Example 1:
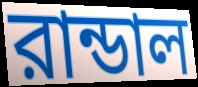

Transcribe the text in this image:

রান্ডাল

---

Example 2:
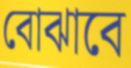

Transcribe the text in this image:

বোঝাবে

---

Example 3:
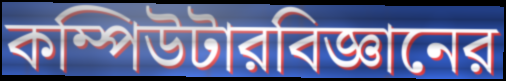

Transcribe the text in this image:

কম্পিউটারবিজ্ঞানের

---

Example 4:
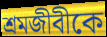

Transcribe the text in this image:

শ্রমজীবীকে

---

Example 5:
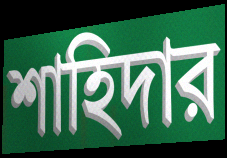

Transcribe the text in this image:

শাহিদার